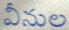
వీనుల